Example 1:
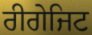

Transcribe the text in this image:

ਰੀਗੇਜਿਟ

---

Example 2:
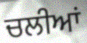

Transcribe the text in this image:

ਚਲੀਆਂ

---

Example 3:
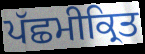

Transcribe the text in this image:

ਪੱਛਮੀਕ੍ਰਿਤ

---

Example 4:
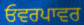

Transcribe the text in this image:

ਓਵਰਪਾਵਰ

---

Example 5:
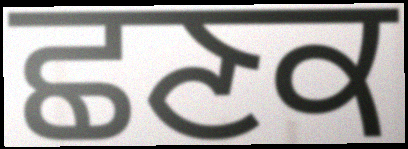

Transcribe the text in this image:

ਛਣਕ